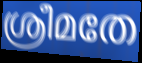
ശ്രീമതേ